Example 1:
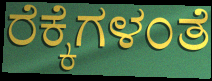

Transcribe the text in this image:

ರೆಕ್ಕೆಗಳಂತೆ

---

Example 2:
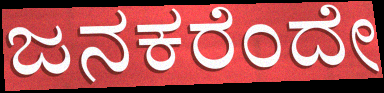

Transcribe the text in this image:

ಜನಕರೆಂದೇ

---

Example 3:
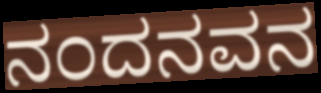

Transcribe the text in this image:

ನಂದನವನ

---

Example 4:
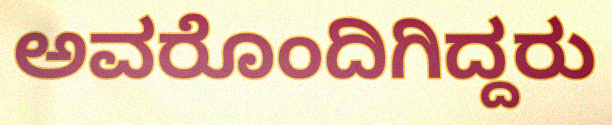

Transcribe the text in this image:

ಅವರೊಂದಿಗಿದ್ದರು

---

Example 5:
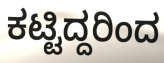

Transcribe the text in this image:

ಕಟ್ಟಿದ್ದರಿಂದ